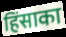
हिंसाका